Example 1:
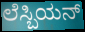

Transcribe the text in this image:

ಲೆಸ್ಬಿಯನ್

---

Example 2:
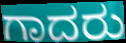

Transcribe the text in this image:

ಗಾದರು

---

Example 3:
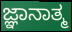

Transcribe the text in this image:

ಜ್ಞಾನಾತ್ಮ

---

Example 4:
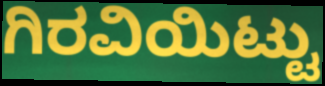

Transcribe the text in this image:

ಗಿರವಿಯಿಟ್ಟು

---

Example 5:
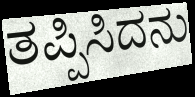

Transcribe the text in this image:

ತಪ್ಪಿಸಿದನು